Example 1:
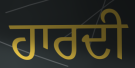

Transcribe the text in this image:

ਹਾਰਦੀ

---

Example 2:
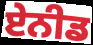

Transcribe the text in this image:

ਏਨੀਡ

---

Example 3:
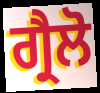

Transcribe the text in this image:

ਗ੍ਰੈਲੋ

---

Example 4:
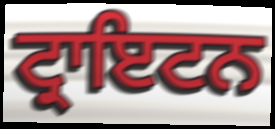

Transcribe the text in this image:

ਟ੍ਰਾਇਟਨ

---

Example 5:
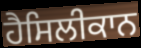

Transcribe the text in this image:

ਹੈਸਿਲੀਕਾਨ